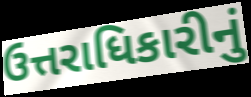
ઉત્તરાધિકારીનું